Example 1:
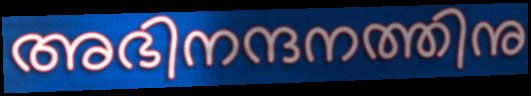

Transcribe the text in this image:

അഭിനന്ദനത്തിനു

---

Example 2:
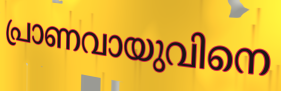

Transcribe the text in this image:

പ്രാണവായുവിനെ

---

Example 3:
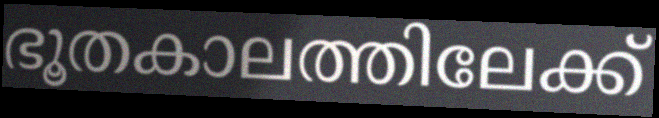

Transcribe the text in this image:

ഭൂതകാലത്തിലേക്ക്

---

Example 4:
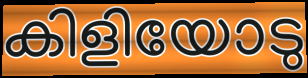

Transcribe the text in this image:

കിളിയോടു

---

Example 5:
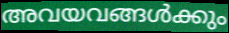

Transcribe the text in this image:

അവയവങ്ങൾക്കും